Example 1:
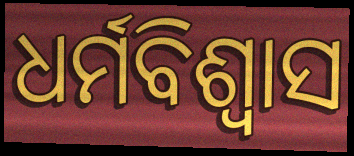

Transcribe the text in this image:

ଧର୍ମବିଶ୍ଵାସ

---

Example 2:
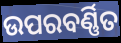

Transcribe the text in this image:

ଉପରବର୍ଣ୍ଣିତ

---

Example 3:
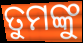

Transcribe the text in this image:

ତୁମଙ୍କୁ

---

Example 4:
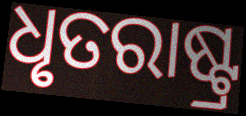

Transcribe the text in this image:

ଧୃତରାଷ୍ଟ୍ର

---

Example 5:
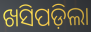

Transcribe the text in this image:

ଖସିପଡ଼ିଲା